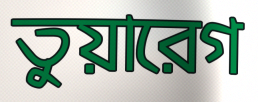
তুয়ারেগ